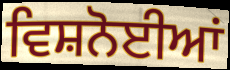
ਵਿਸ਼ਨੋਈਆਂ